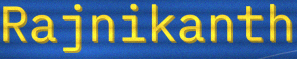
Rajnikanth